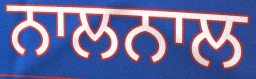
ਨਾਲਨਾਲ